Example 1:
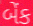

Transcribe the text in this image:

બેંક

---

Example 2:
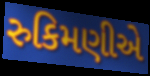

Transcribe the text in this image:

રુકિમણીએ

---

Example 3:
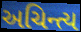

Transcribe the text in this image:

અચિન્ત્ય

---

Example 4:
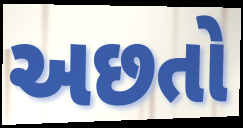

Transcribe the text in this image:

અછતો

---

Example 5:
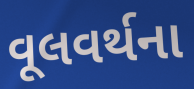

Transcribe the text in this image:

વૂલવર્થના